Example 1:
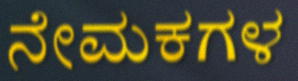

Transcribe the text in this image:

ನೇಮಕಗಳ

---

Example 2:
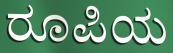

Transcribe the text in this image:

ರೂಪಿಯ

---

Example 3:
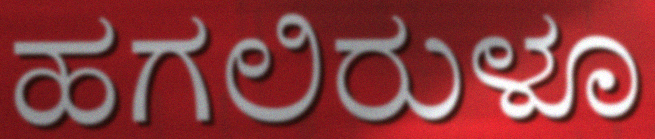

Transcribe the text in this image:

ಹಗಲಿರುಳೂ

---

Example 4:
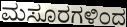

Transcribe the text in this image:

ಮಸೂರಗಳಿಂದ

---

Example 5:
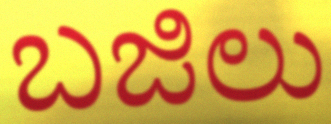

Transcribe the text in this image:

ಬಜಿಲು